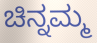
ಚಿನ್ನಮ್ಮ